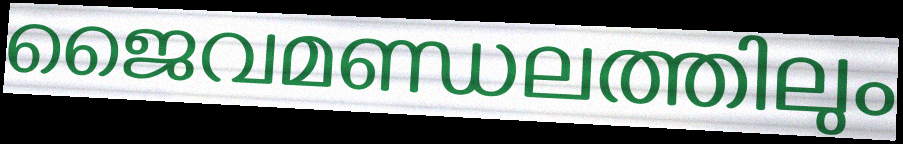
ജൈവമണ്ഡലത്തിലും